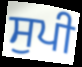
ਸੁਪੀ